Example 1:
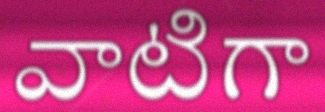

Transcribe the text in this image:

వాటిగా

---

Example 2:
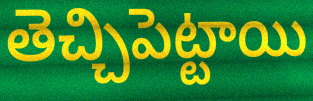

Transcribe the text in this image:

తెచ్చిపెట్టాయి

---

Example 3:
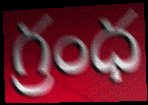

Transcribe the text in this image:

గ్రంధ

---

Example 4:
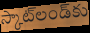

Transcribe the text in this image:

స్కాట్‌లండ్‌కు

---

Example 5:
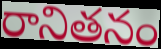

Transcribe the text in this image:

రానితనం